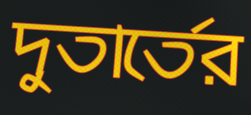
দুতার্তের